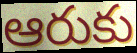
ఆరుకు